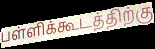
பள்ளிக்கூடத்திற்கு